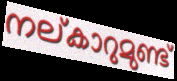
നല്കാറുമുണ്ട്